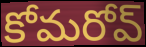
కోమరోవ్